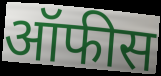
ऑफीस